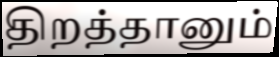
திறத்தானும்